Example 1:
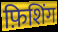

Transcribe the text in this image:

फ़िशिंग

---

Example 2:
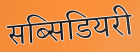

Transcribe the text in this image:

सब्सिडियरी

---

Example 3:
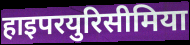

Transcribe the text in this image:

हाइपरयुरिसीमिया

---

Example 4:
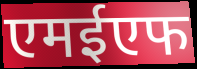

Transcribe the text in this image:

एमईएफ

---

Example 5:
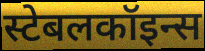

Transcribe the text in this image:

स्टेबलकॉइन्स